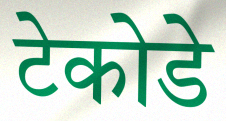
टेकोडे